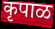
कृपाळ